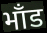
भाँड